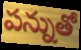
పన్నుతో